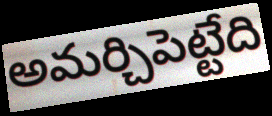
అమర్చిపెట్టేది